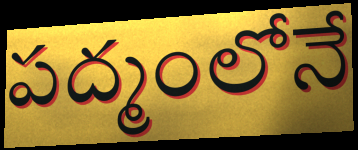
పద్మంలోనే